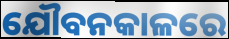
ଯୌବନକାଳରେ